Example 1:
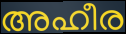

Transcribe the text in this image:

അഹീര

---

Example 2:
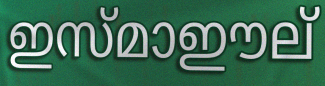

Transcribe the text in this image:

ഇസ്മാഈല്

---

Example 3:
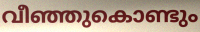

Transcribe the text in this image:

വീഞ്ഞുകൊണ്ടും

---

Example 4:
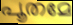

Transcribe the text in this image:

പൂതമേ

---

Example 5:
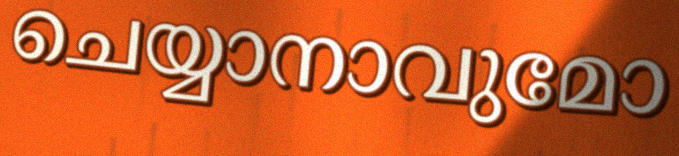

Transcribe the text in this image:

ചെയ്യാനാവുമോ